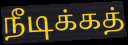
நீடிக்கத்